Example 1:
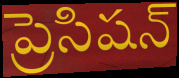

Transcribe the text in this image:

ప్రెసిషన్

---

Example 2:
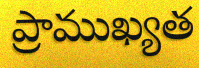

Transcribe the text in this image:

ప్రాముఖ్యత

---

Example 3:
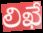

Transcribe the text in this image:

లిఖే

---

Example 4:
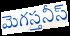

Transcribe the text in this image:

మెగస్తనీస్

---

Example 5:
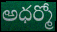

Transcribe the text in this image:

అధర్మో